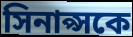
সিনাপ্সকে